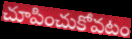
చూపించుకోవటం